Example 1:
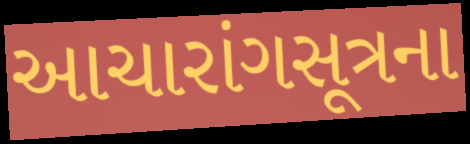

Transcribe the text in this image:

આચારાંગસૂત્રના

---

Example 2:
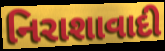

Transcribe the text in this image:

નિરાશાવાદી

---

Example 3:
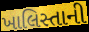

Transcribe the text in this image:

ખાલિસ્તાની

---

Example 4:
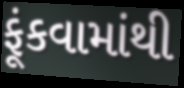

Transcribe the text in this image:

ફૂંકવામાંથી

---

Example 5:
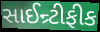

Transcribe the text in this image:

સાઈન્ર્ટીફીક